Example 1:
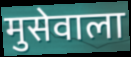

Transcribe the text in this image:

मुसेवाला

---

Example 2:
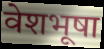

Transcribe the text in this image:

वेशभूषा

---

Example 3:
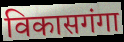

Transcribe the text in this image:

विकासगंगा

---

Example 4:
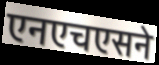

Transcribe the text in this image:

एनएचएसने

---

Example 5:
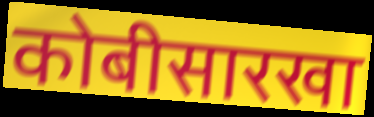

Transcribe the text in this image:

कोबीसारखा